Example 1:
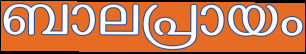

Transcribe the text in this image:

ബാലപ്രായം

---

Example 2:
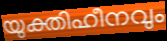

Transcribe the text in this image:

യുക്തിഹീനവും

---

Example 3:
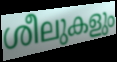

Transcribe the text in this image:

ശീലുകളും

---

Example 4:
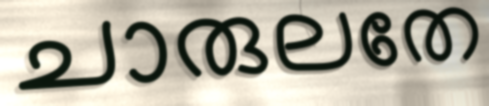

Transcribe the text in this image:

ചാരുലതേ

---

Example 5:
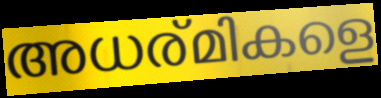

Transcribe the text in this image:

അധര്മികളെ